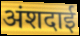
अंशदाई